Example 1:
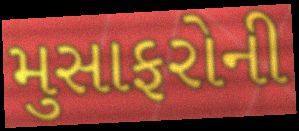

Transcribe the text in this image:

મુસાફરોની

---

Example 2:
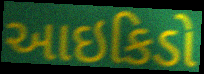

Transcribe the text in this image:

આઇકિડો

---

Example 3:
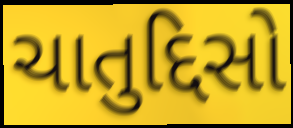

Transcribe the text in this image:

ચાતુદ્દિસો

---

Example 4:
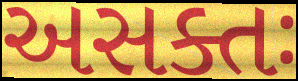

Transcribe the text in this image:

અસક્તઃ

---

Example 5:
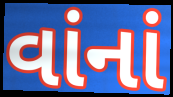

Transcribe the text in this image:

વાંનાં